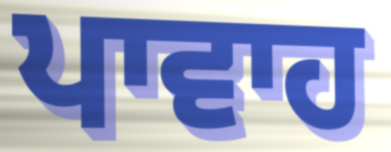
ਪਾਵਾਹ